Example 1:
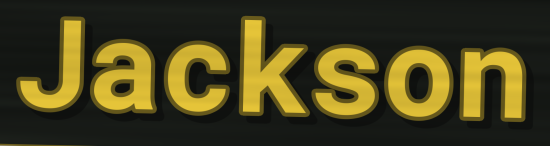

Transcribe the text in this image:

Jackson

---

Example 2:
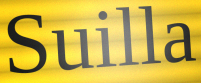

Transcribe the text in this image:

Suilla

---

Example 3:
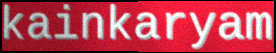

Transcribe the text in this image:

kainkaryam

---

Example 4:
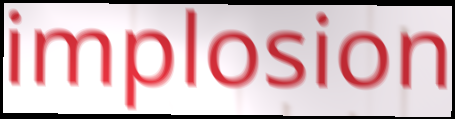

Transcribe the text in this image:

implosion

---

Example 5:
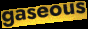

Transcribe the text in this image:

gaseous